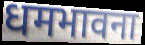
धमभावना